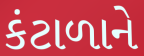
કંટાળાને